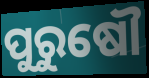
ପୁରୁଷୌ